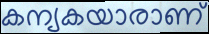
കന്യകയാരാണ്